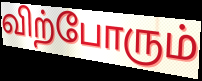
விற்போரும்